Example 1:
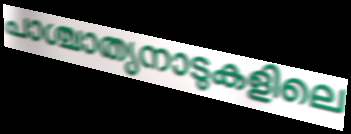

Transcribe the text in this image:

പാശ്ചാത്യനാടുകളിലെ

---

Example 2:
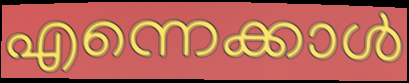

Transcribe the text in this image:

എന്നെക്കാൾ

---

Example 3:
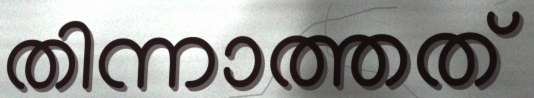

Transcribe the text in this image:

തിന്നാത്തത്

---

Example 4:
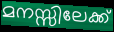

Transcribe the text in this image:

മനസ്സിലേക്ക്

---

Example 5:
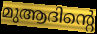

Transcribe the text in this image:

മുആദിന്റെ